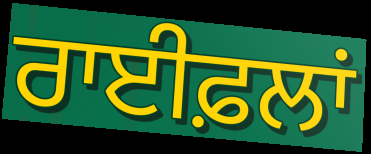
ਰਾਈਫ਼ਲਾਂ